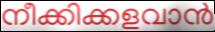
നീക്കിക്കളവാൻ